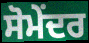
ਸੋਮੇਂਦਰ